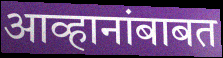
आव्हानांबाबत